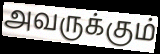
அவருக்கும்